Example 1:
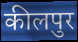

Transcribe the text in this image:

कीलपुर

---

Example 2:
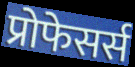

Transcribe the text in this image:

प्रोफेसर्स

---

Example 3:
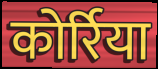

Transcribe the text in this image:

कोर्रिया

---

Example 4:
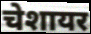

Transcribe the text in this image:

चेशायर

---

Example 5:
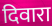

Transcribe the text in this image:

दिवारा